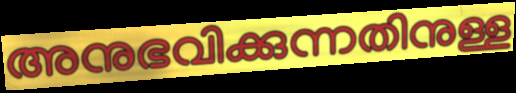
അനുഭവിക്കുന്നതിനുള്ള